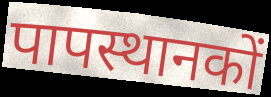
पापस्थानकों